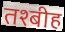
तश्बीह